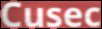
Cusec